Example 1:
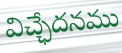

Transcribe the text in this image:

విచ్ఛేదనము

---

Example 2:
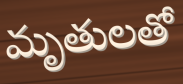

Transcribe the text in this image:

మృతులతో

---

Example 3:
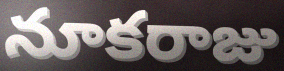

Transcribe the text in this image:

నూకరాజు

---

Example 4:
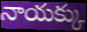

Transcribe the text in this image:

నాయక్కు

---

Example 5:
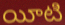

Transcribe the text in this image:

యీటి